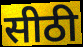
सीठी